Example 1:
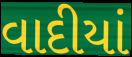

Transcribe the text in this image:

વાદીયાં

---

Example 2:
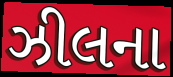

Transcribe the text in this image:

ઝીલના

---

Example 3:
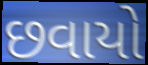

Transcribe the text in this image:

છવાયો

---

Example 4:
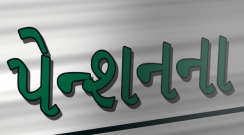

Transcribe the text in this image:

પેન્શનના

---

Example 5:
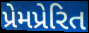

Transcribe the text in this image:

પ્રેમપ્રેરિત